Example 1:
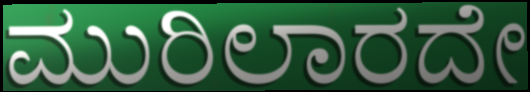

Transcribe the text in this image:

ಮುರಿಲಾರದೇ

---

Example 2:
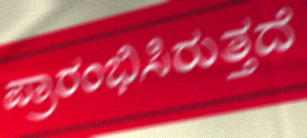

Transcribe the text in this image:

ಪ್ರಾರಂಭಿಸಿರುತ್ತದೆ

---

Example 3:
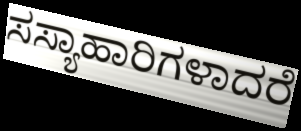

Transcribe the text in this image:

ಸಸ್ಯಾಹಾರಿಗಳಾದರೆ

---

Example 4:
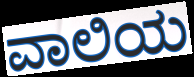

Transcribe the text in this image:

ವಾಲಿಯ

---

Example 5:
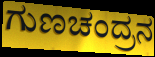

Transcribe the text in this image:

ಗುಣಚಂದ್ರನ